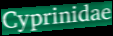
Cyprinidae